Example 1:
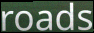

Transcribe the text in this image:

roads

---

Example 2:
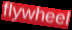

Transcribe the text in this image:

flywheel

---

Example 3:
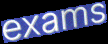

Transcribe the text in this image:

exams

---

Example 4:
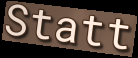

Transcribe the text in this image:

Statt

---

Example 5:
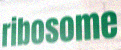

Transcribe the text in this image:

ribosome